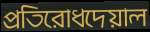
প্রতিরোধদেয়াল